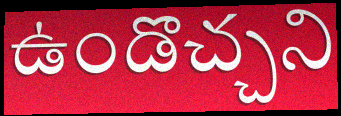
ఉండొచ్చని